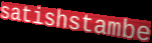
satishstambe